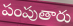
పంపుతారు